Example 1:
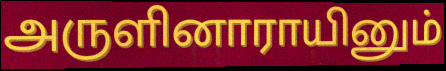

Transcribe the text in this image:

அருளினாராயினும்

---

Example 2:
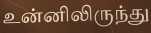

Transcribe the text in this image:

உன்னிலிருந்து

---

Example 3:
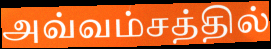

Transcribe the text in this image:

அவ்வம்சத்தில்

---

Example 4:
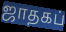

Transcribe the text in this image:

ஜாதகப்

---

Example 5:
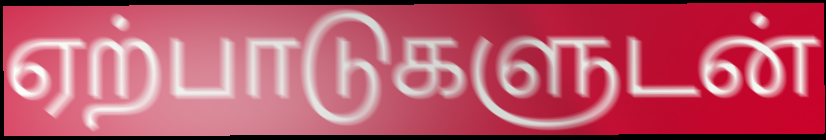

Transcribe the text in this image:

ஏற்பாடுகளுடன்